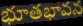
భూతభావన